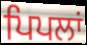
ਪਿਪਲਾਂ